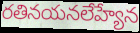
రతినయనలేహ్యేన